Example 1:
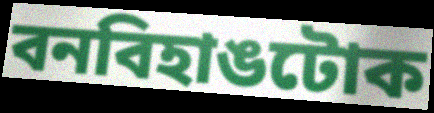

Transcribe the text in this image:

বনবিহাঙটোক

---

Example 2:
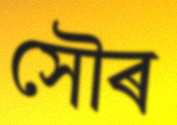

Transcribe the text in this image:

সৌৰ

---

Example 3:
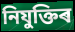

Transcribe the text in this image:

নিযুক্তিৰ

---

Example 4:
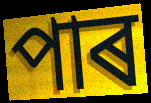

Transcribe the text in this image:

পাৰ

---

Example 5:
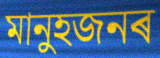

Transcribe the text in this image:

মানুহজনৰ